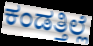
ಕಂಡತ್ತಿಲ್ಲೆ